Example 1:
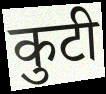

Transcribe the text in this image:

कुटी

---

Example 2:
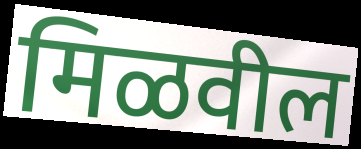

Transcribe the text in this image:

मिळवील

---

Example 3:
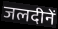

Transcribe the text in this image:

जलदीनें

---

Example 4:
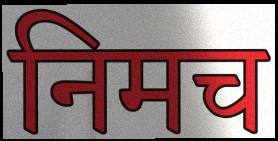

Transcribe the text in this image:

निमच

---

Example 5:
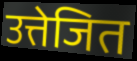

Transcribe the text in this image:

उत्तेजित